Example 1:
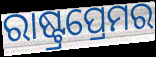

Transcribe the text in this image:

ରାଷ୍ଟ୍ରପ୍ରେମର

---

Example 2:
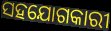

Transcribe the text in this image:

ସହଯୋଗକାରୀ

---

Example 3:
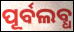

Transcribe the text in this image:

ପୂର୍ବଲବ୍ଧ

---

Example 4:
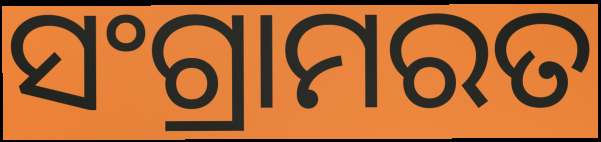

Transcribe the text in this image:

ସଂଗ୍ରାମରତ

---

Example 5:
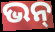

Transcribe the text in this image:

ଭନ୍